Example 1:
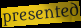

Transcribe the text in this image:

presented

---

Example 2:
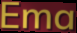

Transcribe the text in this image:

Ema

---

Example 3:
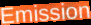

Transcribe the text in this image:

Emission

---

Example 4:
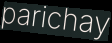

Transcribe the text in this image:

parichay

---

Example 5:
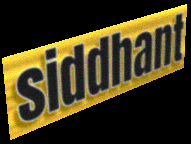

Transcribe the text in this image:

siddhant